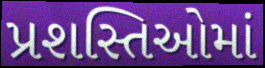
પ્રશસ્તિઓમાં